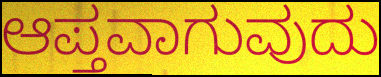
ಆಪ್ತವಾಗುವುದು